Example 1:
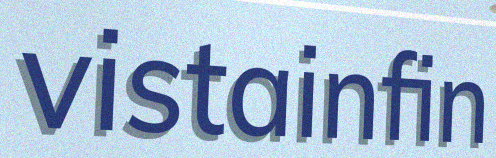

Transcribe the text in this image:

vistainfin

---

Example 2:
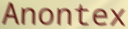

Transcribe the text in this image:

Anontex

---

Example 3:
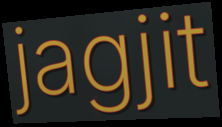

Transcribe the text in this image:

jagjit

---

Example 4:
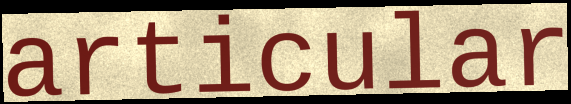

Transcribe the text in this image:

articular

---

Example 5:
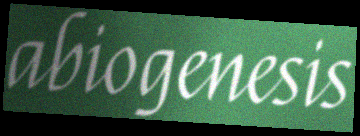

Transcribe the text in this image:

abiogenesis